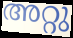
അറ്റു